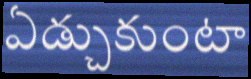
ఏడ్చుకుంటా